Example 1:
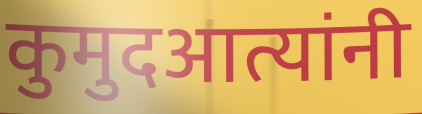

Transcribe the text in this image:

कुमुदआत्यांनी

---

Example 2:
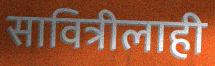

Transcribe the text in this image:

सावित्रीलाही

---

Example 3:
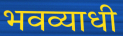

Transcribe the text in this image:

भवव्याधी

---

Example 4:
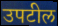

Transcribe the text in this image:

उपटील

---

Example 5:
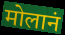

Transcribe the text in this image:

मोलानं